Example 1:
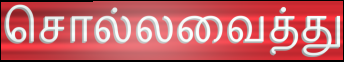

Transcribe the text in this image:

சொல்லவைத்து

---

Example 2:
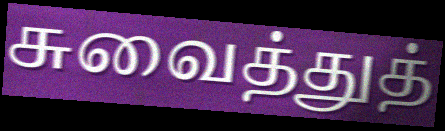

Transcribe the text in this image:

சுவைத்துத்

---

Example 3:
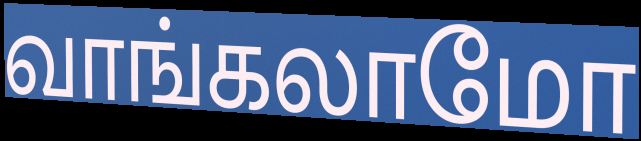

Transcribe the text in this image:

வாங்கலாமோ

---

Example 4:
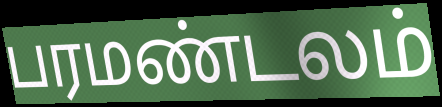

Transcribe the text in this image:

பரமண்டலம்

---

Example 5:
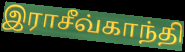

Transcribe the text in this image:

இராசீவ்காந்தி